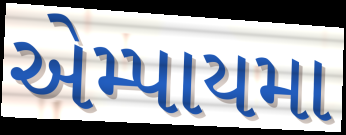
એમ્પાયમા